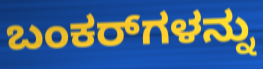
ಬಂಕರ್‌ಗಳನ್ನು